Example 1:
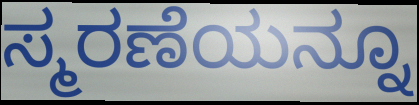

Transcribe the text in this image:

ಸ್ಮರಣೆಯನ್ನೂ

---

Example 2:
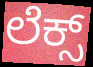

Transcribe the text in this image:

ಲೆಕ್ಸ್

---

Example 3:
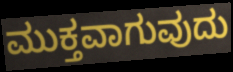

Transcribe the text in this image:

ಮುಕ್ತವಾಗುವುದು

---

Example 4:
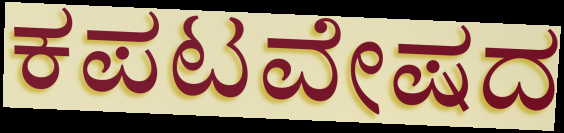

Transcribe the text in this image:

ಕಪಟವೇಷದ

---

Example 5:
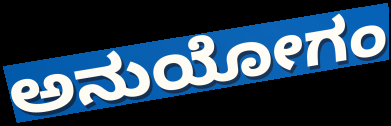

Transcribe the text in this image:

ಅನುಯೋಗಂ